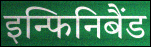
इन्फिनिबैंड